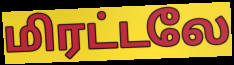
மிரட்டலே